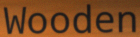
Wooden